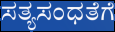
ಸತ್ಯಸಂಧತೆಗೆ